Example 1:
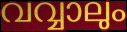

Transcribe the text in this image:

വവ്വാലും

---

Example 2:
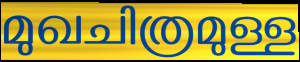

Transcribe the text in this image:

മുഖചിത്രമുള്ള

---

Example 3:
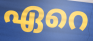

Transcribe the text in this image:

ഏറെ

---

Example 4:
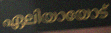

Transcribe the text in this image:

ഏലിയായോട്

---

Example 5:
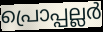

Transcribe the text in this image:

പ്രൊപ്പല്ലർ